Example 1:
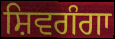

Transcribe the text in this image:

ਸ਼ਿਵਗੰਗਾ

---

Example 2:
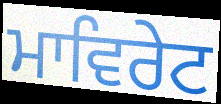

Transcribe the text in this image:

ਮਾਵਿਰੇਟ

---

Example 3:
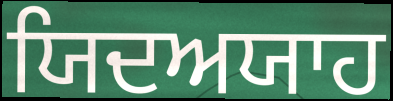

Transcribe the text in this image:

ਯਿਦਅਯਾਹ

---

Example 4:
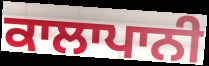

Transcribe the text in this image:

ਕਾਲਾਪਾਨੀ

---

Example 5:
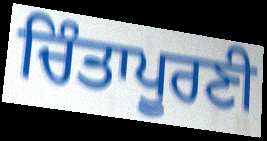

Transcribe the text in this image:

ਚਿੰਤਾਪੂਰਣੀ